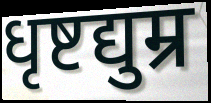
धृष्टद्युम्र